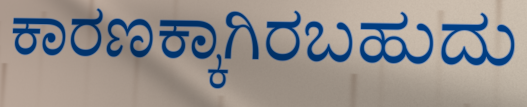
ಕಾರಣಕ್ಕಾಗಿರಬಹುದು